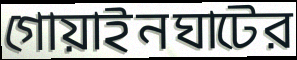
গোয়াইনঘাটের